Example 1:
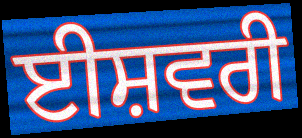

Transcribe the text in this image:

ਈਸ਼ਵਰੀ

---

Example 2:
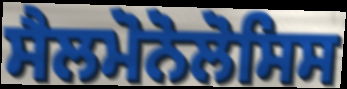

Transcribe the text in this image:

ਸੈਲਮੋਨੋਲੋਸਿਸ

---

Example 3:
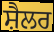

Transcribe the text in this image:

ਸ਼ੈਲਰ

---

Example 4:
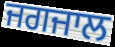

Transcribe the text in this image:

ਜਗਜਾਲ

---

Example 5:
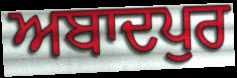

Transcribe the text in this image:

ਅਬਾਦਪੁਰ